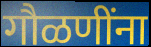
गौळणींना